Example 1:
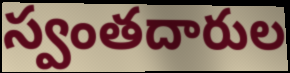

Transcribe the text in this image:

స్వంతదారుల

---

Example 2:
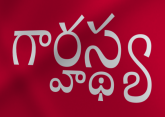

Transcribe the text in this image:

గార్హస్థ్య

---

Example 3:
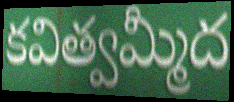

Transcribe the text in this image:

కవిత్వమ్మీద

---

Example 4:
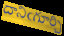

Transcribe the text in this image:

దానిఁగూర్చి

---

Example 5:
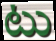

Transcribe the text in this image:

టు